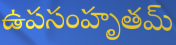
ఉపసంహృతమ్